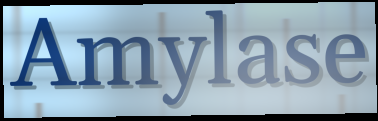
Amylase